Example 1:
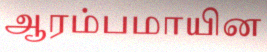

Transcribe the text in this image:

ஆரம்பமாயின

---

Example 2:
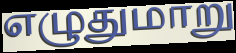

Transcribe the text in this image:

எழுதுமாறு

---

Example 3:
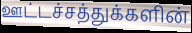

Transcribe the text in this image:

ஊட்டச்சத்துக்களின்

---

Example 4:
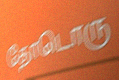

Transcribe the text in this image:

தோடொரு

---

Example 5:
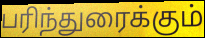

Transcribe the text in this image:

பரிந்துரைக்கும்